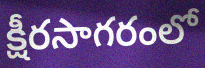
క్షీరసాగరంలో